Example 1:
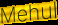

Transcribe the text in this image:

Mehul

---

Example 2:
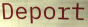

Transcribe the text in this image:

Deport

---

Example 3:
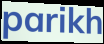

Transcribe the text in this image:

parikh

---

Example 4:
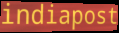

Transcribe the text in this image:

indiapost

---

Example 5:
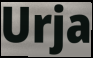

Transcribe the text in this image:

Urja